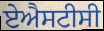
ਏਐਸਟੀਸੀ